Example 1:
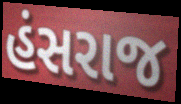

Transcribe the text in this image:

હંસરાજ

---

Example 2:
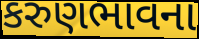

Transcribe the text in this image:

કરુણભાવના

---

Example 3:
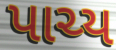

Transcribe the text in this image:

પાચ્ય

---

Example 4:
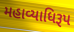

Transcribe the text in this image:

મહાવ્યાધિરૂપ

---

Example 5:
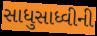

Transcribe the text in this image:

સાધુસાધ્વીની